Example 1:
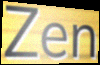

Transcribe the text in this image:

Zen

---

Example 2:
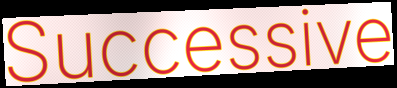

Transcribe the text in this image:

Successive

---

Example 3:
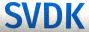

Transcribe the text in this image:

SVDK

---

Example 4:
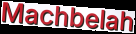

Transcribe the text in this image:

Machbelah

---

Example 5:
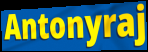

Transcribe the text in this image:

Antonyraj